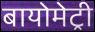
बायोमेट्री